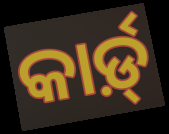
କାର୍ଡ଼୍